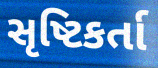
સૃષ્ટિકર્તા